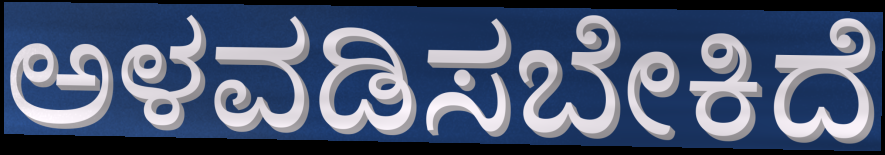
ಅಳವಡಿಸಬೇಕಿದೆ